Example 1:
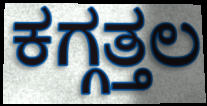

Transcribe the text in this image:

ಕಗ್ಗತ್ತಲ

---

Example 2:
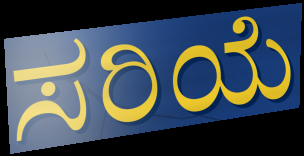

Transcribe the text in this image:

ಸರಿಯೆ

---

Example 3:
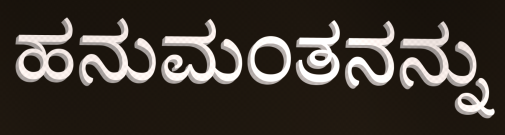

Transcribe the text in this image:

ಹನುಮಂತನನ್ನು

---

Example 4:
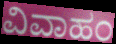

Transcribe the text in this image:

ವಿವಾಹಂ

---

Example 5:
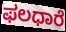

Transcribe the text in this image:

ಫಲಧಾರೆ